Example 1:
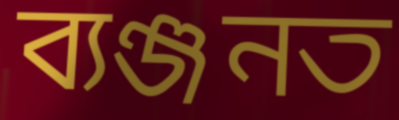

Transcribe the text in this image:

ব্যঞ্জনত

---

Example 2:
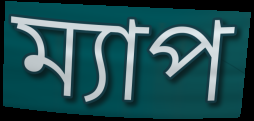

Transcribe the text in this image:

ম্যাপ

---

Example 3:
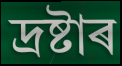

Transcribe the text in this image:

দ্ৰষ্টাৰ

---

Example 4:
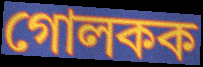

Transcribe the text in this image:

গোলকক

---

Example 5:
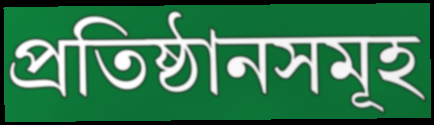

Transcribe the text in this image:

প্ৰতিষ্ঠানসমূহ